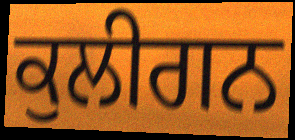
ਕੁਲੀਗਨ